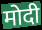
मोदी